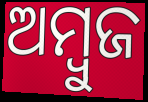
ଅମ୍ୱୁଜ